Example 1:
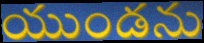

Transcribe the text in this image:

యుండను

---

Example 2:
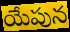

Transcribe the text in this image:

యేపున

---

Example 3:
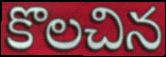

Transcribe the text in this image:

కొలచిన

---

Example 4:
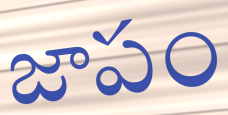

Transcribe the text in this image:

జాపం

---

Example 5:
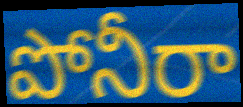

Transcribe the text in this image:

పోనీరా